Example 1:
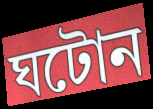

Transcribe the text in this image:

ঘটোন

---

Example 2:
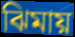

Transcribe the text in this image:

ঝিমায়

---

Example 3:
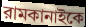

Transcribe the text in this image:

রামকানাইকে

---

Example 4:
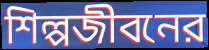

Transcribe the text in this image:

শিল্পজীবনের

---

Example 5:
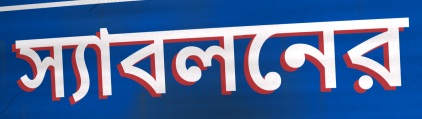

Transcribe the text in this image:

স্যাবলনের